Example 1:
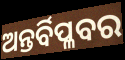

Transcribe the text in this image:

ଅନ୍ତର୍ବିପ୍ଳବର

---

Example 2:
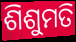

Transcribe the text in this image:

ଶିଶୁମତି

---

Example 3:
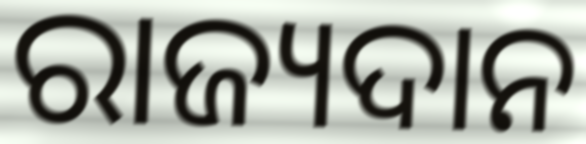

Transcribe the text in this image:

ରାଜ୍ୟଦାନ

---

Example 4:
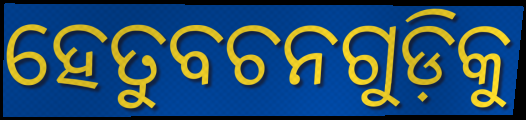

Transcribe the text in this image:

ହେତୁବଚନଗୁଡ଼ିକୁ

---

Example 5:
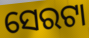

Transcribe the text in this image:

ସେରଟା